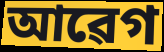
আৱেগ